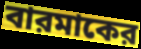
বারমাকের